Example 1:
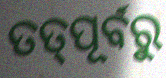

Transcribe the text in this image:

ତତ୍‌ପୂର୍ବରୁ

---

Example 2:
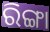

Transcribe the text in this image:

ରିଙ୍ଗା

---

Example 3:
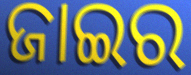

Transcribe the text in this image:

ଜାଇର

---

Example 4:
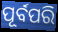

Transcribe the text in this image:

ପୂର୍ବପରି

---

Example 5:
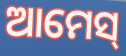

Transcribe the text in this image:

ଆମେସ୍